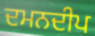
ਦਮਨਦੀਪ